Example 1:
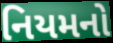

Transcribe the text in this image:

નિયમનો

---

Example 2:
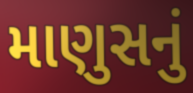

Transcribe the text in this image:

માણુસનું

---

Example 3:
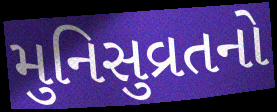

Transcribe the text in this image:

મુનિસુવ્રતનો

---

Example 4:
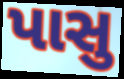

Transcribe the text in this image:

પાસુ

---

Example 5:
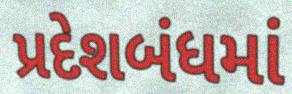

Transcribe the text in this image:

પ્રદેશબંધમાં